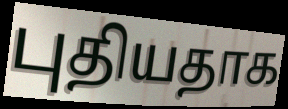
புதியதாக